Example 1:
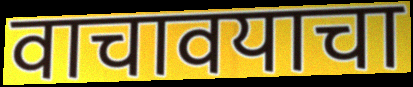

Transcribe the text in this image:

वाचावयाचा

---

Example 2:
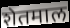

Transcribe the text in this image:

शेतमाल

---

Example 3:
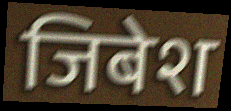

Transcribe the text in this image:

जिबेश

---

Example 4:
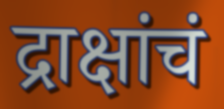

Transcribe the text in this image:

द्राक्षांचं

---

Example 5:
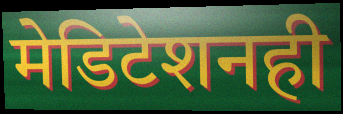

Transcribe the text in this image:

मेडिटेशनही